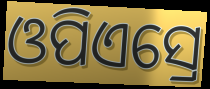
ଓପିଏସ୍ରେ